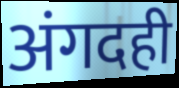
अंगदही